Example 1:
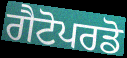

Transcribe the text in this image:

ਗੈਟੋਪਰਡੋ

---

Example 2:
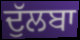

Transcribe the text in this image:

ਦੁੱਲਬਾ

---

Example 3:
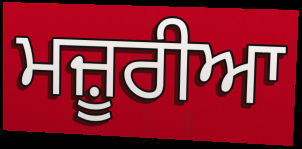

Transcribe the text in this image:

ਮਜ਼ੂਰੀਆ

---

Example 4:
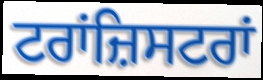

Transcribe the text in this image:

ਟਰਾਂਜ਼ਿਸਟਰਾਂ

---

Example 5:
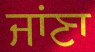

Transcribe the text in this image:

ਜਾਂਣਾ